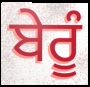
ਬੇਰੂੰ